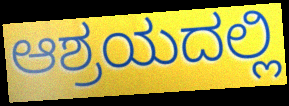
ಆಶ್ರಯದಲ್ಲಿ